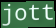
jott